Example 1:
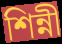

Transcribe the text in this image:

শিন্নী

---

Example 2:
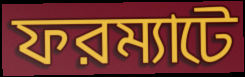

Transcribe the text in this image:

ফরম্যাটে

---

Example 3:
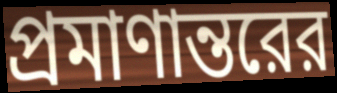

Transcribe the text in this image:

প্রমাণান্তরের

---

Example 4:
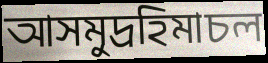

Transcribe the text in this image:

আসমুদ্রহিমাচল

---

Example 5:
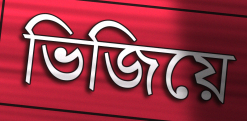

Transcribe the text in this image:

ভিজিয়ে